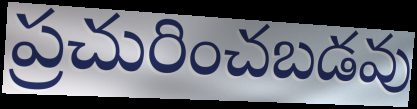
ప్రచురించబడవు